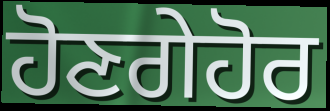
ਹੋਣਗੇਹੋਰ